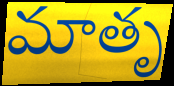
మాతృ